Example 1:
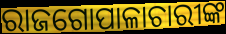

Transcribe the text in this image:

ରାଜଗୋପାଳାଚାରୀଙ୍କ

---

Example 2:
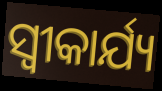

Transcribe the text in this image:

ସ୍ୱୀକାର୍ଯ୍ୟ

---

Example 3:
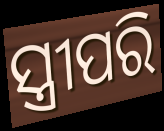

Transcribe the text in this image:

ସ୍ତ୍ରୀପରି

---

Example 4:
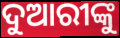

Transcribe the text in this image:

ଦୁଆରୀଙ୍କୁ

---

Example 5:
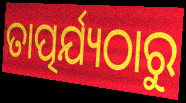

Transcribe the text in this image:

ତାତ୍ପର୍ଯ୍ୟଠାରୁ